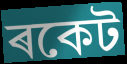
ৰকেট